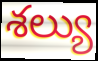
శల్యు